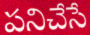
పనిచేసే